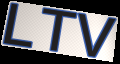
LTV